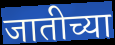
जातीच्या